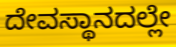
ದೇವಸ್ಥಾನದಲ್ಲೇ